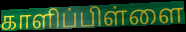
காளிப்பிள்ளை